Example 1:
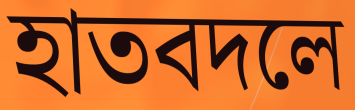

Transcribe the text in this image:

হাতবদলে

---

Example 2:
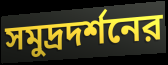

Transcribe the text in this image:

সমুদ্রদর্শনের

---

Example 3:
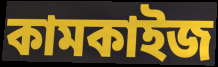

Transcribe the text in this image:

কামকাইজ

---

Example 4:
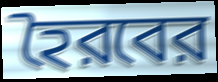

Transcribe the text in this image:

হৈরবের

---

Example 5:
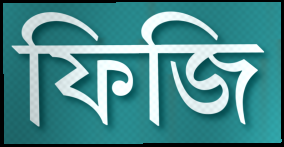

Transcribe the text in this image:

ফিজি